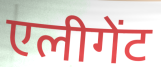
एलीगेंट